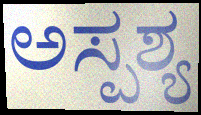
ಅಸ್ಪಶ್ಯ